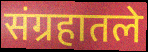
संग्रहातले